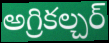
అగ్రికల్చర్